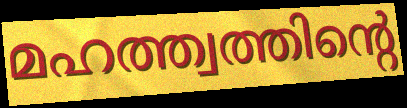
മഹത്ത്വത്തിന്റെ